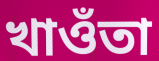
খাওঁতা